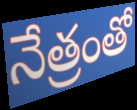
నేత్రంతో